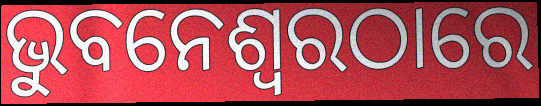
ଭୁବନେଶ୍ଵରଠାରେ